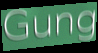
Gung